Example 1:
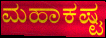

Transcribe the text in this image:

ಮಹಾಕಷ್ಟ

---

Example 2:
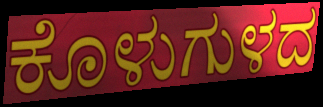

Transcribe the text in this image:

ಕೊಳುಗುಳದ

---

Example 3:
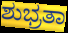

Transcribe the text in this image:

ಶುಭ್ರತಾ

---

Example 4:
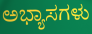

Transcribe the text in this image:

ಅಭ್ಯಾಸಗಳು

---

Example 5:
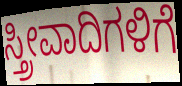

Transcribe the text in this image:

ಸ್ತ್ರೀವಾದಿಗಳಿಗೆ